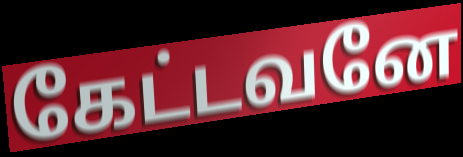
கேட்டவனே